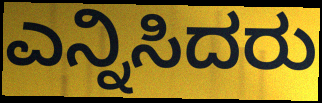
ಎನ್ನಿಸಿದರು